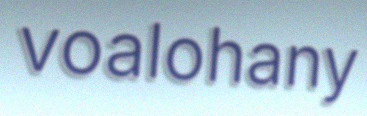
voalohany